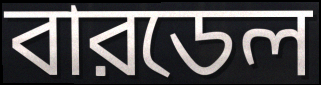
বারডেল